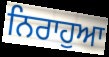
ਨਿਰਾਹੁਆ